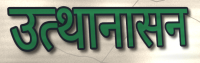
उत्थानासन